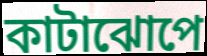
কাটাঝোপে